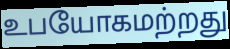
உபயோகமற்றது